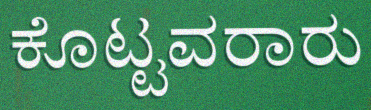
ಕೊಟ್ಟವರಾರು